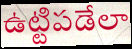
ఉట్టిపడేలా